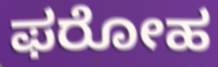
ಫರೋಹ